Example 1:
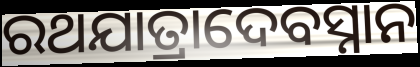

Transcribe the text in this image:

ରଥଯାତ୍ରାଦେବସ୍ନାନ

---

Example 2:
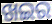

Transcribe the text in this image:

ଖଇର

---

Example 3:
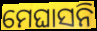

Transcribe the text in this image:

ମେଘାସନି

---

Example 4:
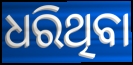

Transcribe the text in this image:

ଧରିଥିବା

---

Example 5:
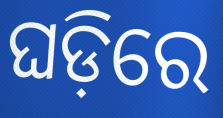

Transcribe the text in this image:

ଘଡ଼ିରେ